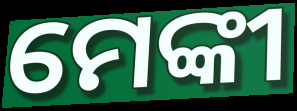
ମେଙ୍କୀ